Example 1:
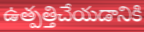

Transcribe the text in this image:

ఉత్పత్తిచేయడానికి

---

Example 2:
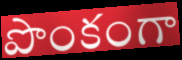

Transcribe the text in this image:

పొంకంగా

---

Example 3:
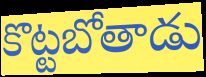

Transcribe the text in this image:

కొట్టబోతాడు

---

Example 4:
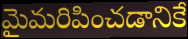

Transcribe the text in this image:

మైమరిపించడానికే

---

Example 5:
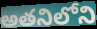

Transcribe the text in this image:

అతనిలోని